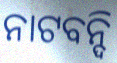
ନାଟବନ୍ଦି